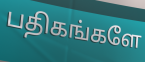
பதிகங்களே